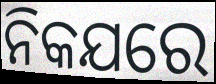
ନିକଯରେ